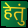
हेतुं